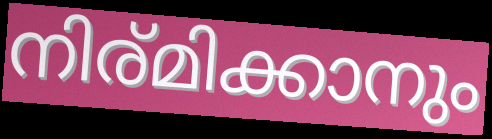
നിര്മിക്കാനും